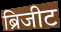
ब्रिजीट